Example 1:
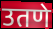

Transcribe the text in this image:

उतणे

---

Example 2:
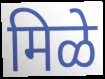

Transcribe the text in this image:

मिळे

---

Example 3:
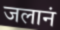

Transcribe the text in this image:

जलानं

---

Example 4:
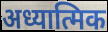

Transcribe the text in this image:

अध्यात्मिक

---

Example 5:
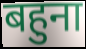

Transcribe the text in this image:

बहुना